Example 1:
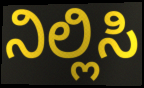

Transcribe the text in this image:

ನಿಲ್ಲಿಸಿ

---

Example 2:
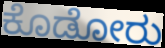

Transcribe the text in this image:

ಕೊಡೋರು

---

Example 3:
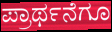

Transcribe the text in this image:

ಪ್ರಾರ್ಥನೆಗೂ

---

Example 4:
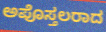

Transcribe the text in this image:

ಅಪೊಸ್ತಲರಾದ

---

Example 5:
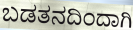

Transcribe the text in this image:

ಬಡತನದಿಂದಾಗಿ